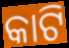
କାଟି